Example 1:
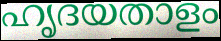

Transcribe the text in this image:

ഹൃദയതാളം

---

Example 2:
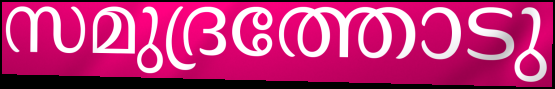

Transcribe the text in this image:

സമുദ്രത്തോടു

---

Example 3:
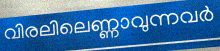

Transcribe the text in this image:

വിരലിലെണ്ണാവുന്നവർ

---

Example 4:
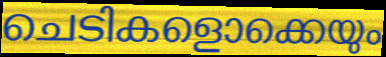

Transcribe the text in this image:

ചെടികളൊക്കെയും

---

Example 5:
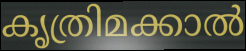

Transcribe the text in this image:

കൃത്രിമക്കാൽ